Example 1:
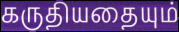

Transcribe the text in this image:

கருதியதையும்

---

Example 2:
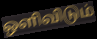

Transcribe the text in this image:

ஒளிவிடும்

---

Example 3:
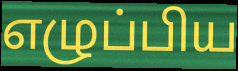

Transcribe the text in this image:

எழுப்பிய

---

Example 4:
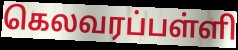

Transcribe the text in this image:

கெலவரப்பள்ளி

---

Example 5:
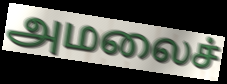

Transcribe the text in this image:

அமலைச்